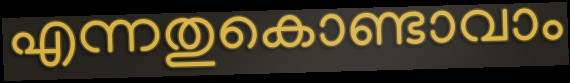
എന്നതുകൊണ്ടാവാം